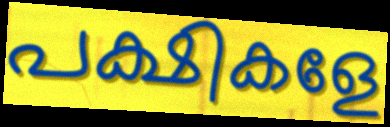
പക്ഷികളേ